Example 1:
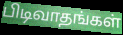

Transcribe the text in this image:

பிடிவாதங்கள்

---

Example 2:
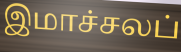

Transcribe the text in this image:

இமாச்சலப்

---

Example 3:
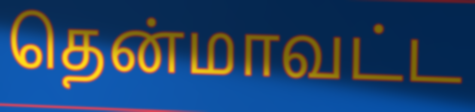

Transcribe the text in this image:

தென்மாவட்ட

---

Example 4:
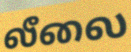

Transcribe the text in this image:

லீலை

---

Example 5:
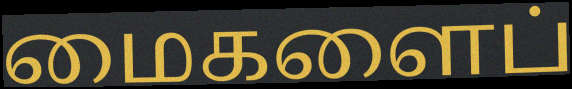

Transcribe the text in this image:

மைகளைப்